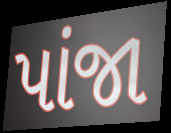
પાંજા